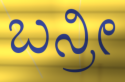
ಬನ್ರೀ